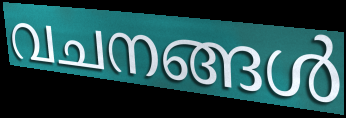
വചനങ്ങൾ